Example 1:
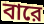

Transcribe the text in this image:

বারে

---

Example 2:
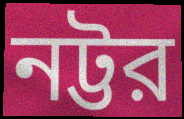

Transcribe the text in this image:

নট্টর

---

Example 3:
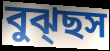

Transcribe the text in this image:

বুঝ্ছস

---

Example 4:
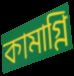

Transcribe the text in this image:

কামাগ্নি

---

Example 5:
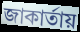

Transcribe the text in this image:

জাকার্তায়